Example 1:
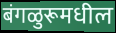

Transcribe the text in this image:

बंगळुरूमधील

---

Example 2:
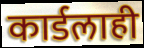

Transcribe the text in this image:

कार्डलाही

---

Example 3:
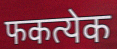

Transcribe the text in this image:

फकत्येक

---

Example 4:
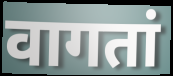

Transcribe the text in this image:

वागतां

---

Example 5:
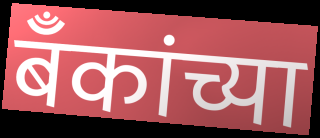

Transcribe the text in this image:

बॅँकांच्या